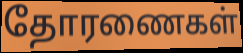
தோரணைகள்